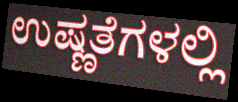
ಉಷ್ಣತೆಗಳಲ್ಲಿ